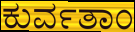
ಕುರ್ವತಾಂ